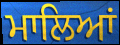
ਮਾਲਿਆਂ